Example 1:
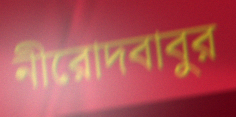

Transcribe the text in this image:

নীরোদবাবুর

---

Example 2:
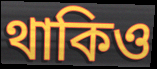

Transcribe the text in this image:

থাকিও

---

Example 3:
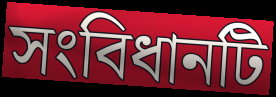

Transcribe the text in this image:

সংবিধানটি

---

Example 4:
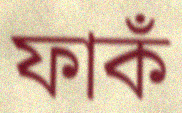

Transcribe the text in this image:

ফাকঁ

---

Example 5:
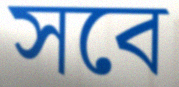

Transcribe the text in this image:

সবে